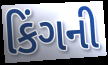
કિંગની